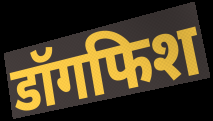
डॉगफिश